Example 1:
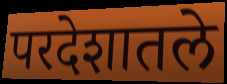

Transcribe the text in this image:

परदेशातले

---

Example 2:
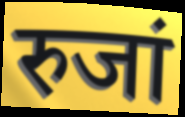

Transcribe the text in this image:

रुजां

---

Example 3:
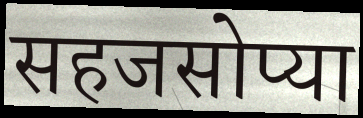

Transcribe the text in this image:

सहजसोप्या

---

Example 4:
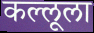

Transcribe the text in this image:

कल्लूला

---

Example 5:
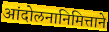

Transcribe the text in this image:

आंदोलनानिमित्ताने